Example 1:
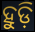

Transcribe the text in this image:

ହୁଡ଼ି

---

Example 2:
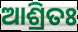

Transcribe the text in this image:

ଆଶ୍ରିତଃ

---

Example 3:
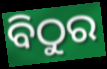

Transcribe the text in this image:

ବିଠୁର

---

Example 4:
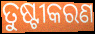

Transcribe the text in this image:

ତୁଷ୍ଟୀକରଣ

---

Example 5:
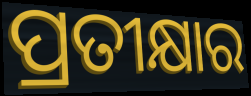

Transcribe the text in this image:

ପ୍ରତୀକ୍ଷାର